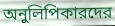
অনুলিপিকারদের